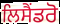
ਲਿਸੈਂਡਰੋ